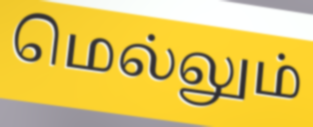
மெல்லும்